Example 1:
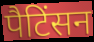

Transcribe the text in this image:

पैटिंसन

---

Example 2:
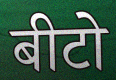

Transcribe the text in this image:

बीटो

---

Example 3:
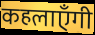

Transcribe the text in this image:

कहलाएँगी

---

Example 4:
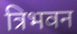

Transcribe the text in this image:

त्रिभवन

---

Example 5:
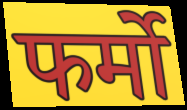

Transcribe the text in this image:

फर्मो